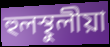
হুলস্থুলীয়া